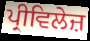
ਪ੍ਰੀਵਿਲੇਜ਼